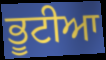
ਭੂਟੀਆ